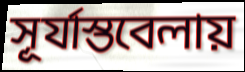
সূর্যাস্তবেলায়